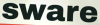
sware